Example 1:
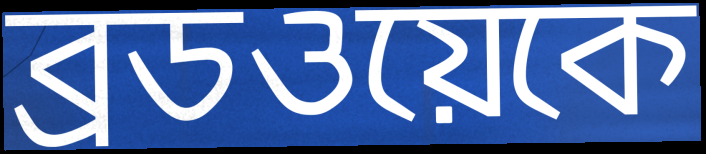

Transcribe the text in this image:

ব্রডওয়েকে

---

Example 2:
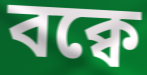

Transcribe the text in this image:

বক্বে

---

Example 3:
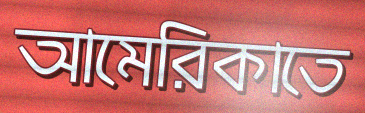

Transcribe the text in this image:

আমেরিকাতে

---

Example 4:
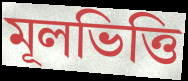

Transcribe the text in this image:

মূলভিত্তি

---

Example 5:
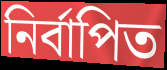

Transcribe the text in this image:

নির্বাপিত